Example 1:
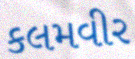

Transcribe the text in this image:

કલમવીર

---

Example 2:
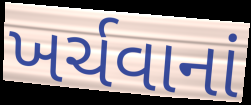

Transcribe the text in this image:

ખર્ચવાનાં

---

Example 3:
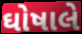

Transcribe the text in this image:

ઘોષાલે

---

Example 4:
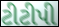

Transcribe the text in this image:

ટીટીપી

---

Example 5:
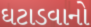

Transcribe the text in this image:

ઘટાડવાનો